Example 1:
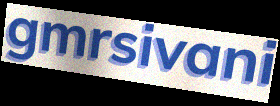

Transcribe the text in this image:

gmrsivani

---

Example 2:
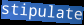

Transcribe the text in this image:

stipulate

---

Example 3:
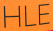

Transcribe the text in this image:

HLE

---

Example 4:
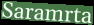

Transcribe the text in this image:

Saramrta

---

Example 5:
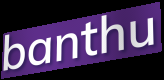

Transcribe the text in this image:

banthu